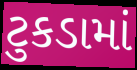
ટુકડામાં